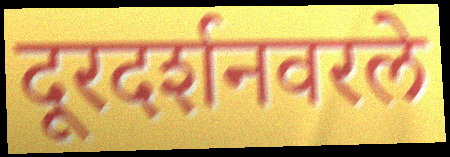
दूरदर्शनवरले